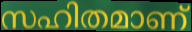
സഹിതമാണ്